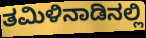
ತಮಿಳಿನಾಡಿನಲ್ಲಿ